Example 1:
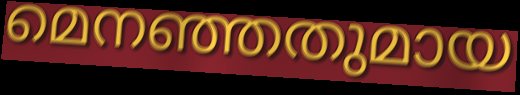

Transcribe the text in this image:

മെനഞ്ഞതുമായ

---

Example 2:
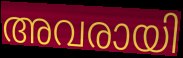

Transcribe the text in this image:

അവരായി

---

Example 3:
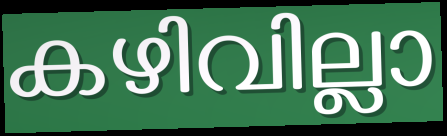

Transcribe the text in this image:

കഴിവില്ലാ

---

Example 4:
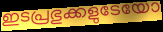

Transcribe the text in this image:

ഇടപ്രഭുക്കളുടേയോ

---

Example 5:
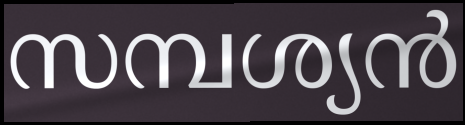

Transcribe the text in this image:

സമ്പശ്യൻ